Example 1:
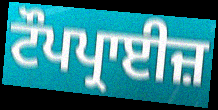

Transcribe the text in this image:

ਟੌਪਪ੍ਰਾਈਜ਼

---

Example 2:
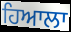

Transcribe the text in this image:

ਹਿਆਲਾ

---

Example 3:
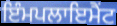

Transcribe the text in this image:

ਇੰਮਪਲਾਇਮੈਂਟ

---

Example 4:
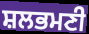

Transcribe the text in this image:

ਸ਼ਲਭਮਣੀ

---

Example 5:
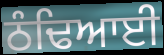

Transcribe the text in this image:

ਠੰਢਿਆਈ